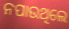
ନପାଉଥିଲେ